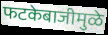
फटकेबाजीमुळे